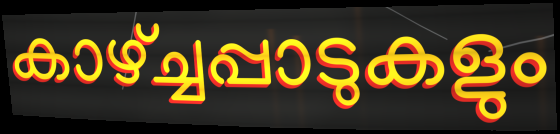
കാഴ്ച്ചപ്പാടുകളും